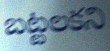
బట్టలకని